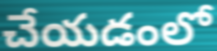
చేయడంలో